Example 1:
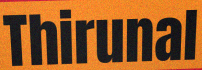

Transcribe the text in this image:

Thirunal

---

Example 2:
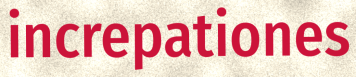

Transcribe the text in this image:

increpationes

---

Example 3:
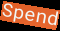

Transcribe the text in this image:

Spend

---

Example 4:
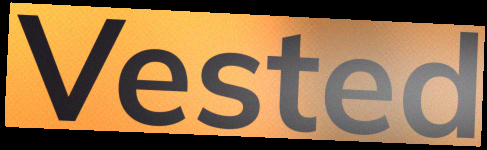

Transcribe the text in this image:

Vested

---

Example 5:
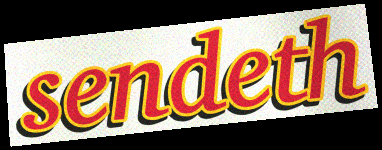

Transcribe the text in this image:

sendeth